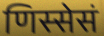
णिस्सेसं